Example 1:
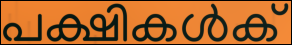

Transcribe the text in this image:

പക്ഷികൾക്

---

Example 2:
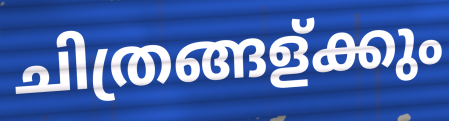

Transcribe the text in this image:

ചിത്രങ്ങള്ക്കും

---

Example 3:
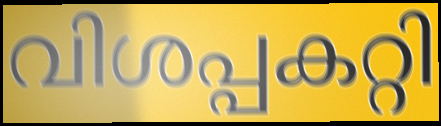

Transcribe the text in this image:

വിശപ്പകറ്റി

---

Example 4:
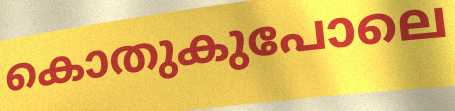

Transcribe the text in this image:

കൊതുകുപോലെ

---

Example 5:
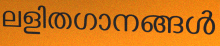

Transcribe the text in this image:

ലളിതഗാനങ്ങൾ